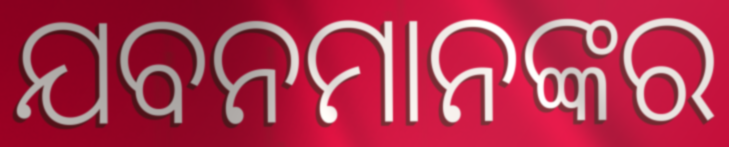
ଯବନମାନଙ୍କର